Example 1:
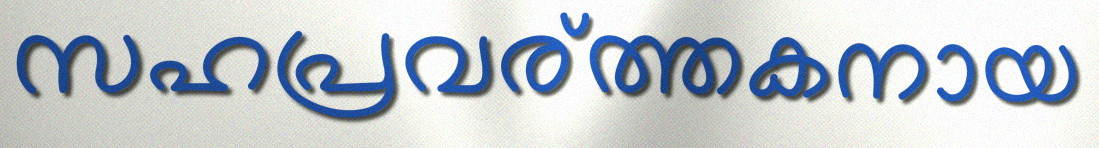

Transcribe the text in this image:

സഹപ്രവര്ത്തകനായ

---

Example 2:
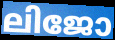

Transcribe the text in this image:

ലിജോ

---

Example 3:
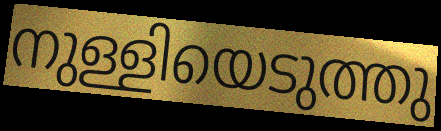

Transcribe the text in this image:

നുള്ളിയെടുത്തു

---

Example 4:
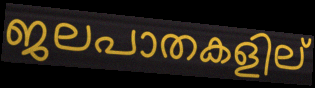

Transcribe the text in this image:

ജലപാതകളില്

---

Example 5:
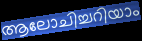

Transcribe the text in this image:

ആലോചിച്ചറിയാം